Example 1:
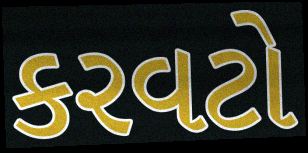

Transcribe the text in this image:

કરવટો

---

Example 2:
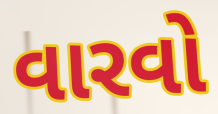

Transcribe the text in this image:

વારવો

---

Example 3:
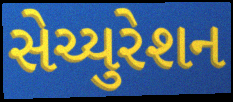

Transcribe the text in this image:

સેચ્યુરેશન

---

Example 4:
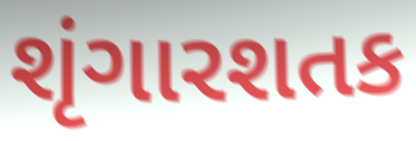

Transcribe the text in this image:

શૃંગારશતક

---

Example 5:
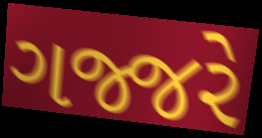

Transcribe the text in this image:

ગજ્જરે